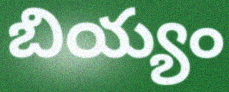
బియ్యం